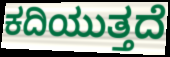
ಕದಿಯುತ್ತದೆ